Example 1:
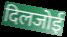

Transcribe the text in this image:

दिलजोई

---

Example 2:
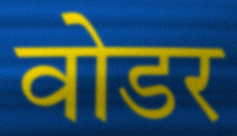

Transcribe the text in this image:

वोडर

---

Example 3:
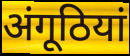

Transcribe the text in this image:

अंगूठियां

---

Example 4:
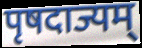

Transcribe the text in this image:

पृषदाज्यम्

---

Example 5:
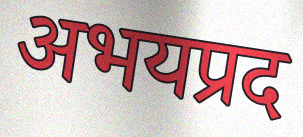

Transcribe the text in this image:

अभयप्रद